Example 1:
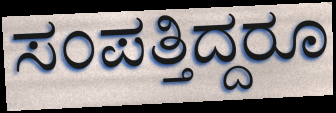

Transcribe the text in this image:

ಸಂಪತ್ತಿದ್ದರೂ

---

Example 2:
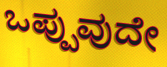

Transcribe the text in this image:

ಒಪ್ಪುವುದೇ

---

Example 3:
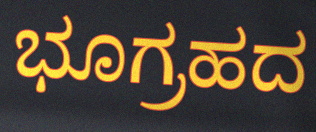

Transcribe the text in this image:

ಭೂಗ್ರಹದ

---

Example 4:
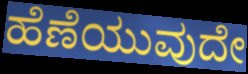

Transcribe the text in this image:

ಹೆಣೆಯುವುದೇ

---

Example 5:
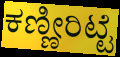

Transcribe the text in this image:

ಕಣ್ಣೀರಿಟ್ಟೆ